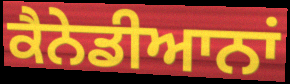
ਕੈਨੇਡੀਆਨਾਂ